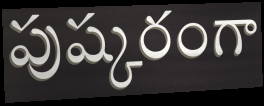
పుష్కరంగా